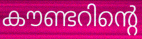
കൗണ്ടറിന്റെ